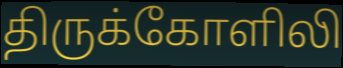
திருக்கோளிலி